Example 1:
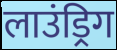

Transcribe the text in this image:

लाउंड्रिग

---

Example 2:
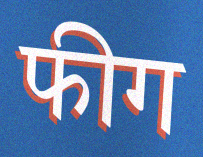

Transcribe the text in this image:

फीग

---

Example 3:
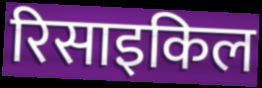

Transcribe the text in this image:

रिसाइकिल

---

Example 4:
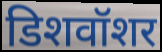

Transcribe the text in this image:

डिशवॉशर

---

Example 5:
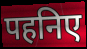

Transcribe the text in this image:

पहनिए